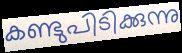
കണ്ടുപിടിക്കുന്നു